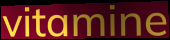
vitamine